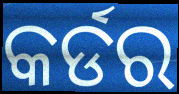
କର୍ଡର